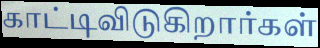
காட்டிவிடுகிறார்கள்